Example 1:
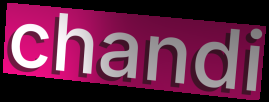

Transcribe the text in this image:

chandi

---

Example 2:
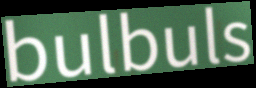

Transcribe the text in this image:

bulbuls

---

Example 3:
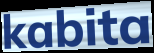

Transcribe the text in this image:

kabita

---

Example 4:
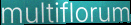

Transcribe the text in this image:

multiflorum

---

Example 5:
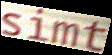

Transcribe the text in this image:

simt